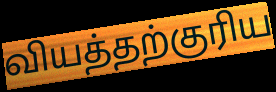
வியத்தற்குரிய